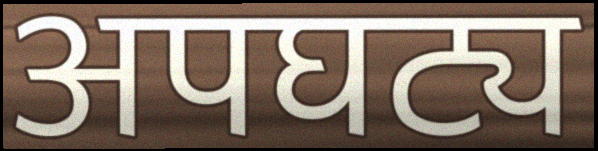
अपघट्य